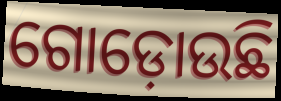
ଗୋଡ଼ୋଉଛି